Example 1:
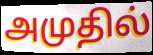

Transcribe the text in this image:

அமுதில்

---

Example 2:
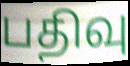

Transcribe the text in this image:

பதிவு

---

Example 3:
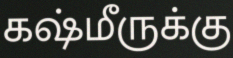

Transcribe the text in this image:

கஷ்மீருக்கு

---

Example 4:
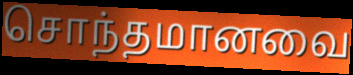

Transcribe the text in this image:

சொந்தமானவை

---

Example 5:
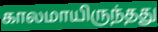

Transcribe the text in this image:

காலமாயிருந்தது